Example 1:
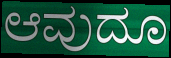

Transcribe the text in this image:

ಆವುದೂ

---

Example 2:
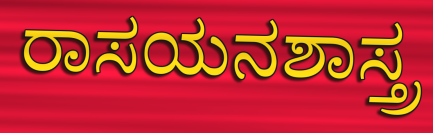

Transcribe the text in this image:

ರಾಸಯನಶಾಸ್ತ್ರ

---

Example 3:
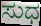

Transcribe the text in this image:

ಸುಧ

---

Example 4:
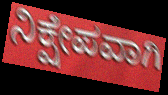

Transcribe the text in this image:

ನಿಕ್ಷೇಪವಾಗಿ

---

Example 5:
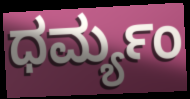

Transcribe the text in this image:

ಧರ್ಮ್ಯಂ